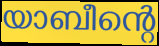
യാബീന്റെ